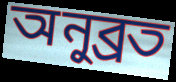
অনুব্রত